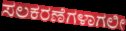
ಸಲಕರಣೆಗಳಾಗಲೀ